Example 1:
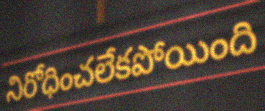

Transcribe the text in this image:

నిరోధించలేకపోయింది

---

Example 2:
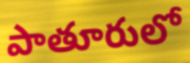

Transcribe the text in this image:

పాతూరులో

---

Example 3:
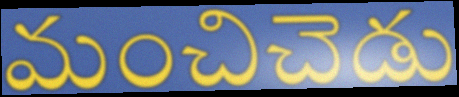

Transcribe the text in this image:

మంచిచెడు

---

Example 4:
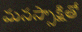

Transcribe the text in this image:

మనస్సాక్షితో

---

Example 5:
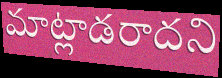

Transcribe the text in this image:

మాట్లాడరాదని